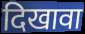
दिखावा